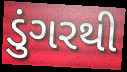
ડુંગરથી